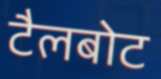
टैलबोट